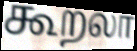
கூறலா